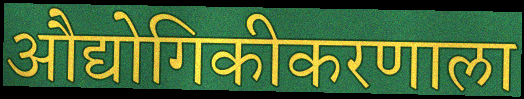
औद्योगिकीकरणाला